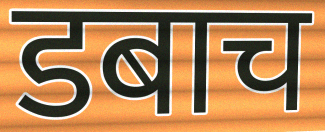
डबाच